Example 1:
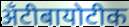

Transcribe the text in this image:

अँटीबायोटीक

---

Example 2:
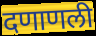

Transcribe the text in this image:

दणाणली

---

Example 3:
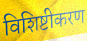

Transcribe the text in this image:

विशिष्टीकरण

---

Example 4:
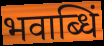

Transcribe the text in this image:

भवाब्धिं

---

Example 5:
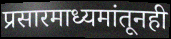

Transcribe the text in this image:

प्रसारमाध्यमांतूनही